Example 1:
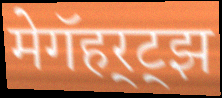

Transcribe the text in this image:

मेगॅहर्ट्‌झ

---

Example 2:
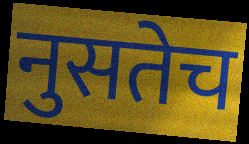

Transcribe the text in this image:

नुसतेच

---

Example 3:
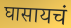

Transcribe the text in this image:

घासायचं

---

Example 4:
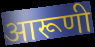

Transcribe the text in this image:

आरूणी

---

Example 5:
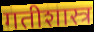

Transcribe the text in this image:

गतीशास्त्र